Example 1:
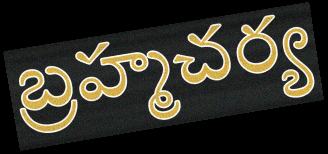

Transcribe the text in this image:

బ్రహ్మచర్య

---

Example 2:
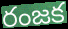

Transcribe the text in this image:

రంజక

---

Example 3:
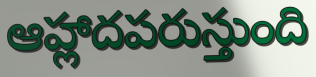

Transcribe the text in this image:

ఆహ్లాదపరుస్తుంది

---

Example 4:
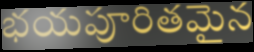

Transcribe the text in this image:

భయపూరితమైన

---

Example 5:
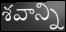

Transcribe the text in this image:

శవాన్ని